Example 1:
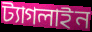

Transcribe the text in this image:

ট্যাগলাইন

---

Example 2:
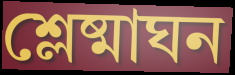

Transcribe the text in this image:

শ্লেষ্মাঘন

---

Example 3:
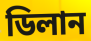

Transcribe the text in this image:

ডিলান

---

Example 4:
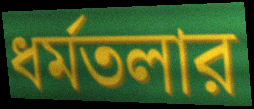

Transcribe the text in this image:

ধর্মতলার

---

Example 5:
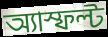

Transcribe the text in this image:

অ্যাস্ফল্ট